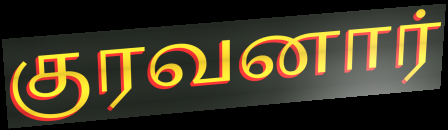
குரவனார்